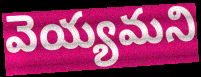
వెయ్యమని